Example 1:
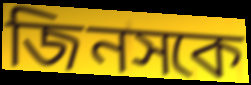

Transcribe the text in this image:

জিনসকে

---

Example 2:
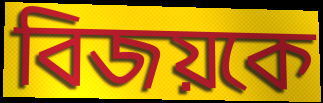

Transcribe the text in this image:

বিজয়কে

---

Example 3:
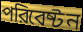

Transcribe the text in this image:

পরিবেষ্টন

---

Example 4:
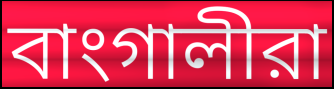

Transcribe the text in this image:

বাংগালীরা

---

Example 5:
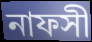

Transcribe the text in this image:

নাফসী